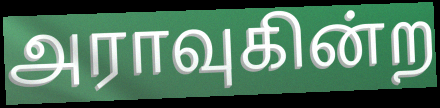
அராவுகின்ற